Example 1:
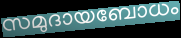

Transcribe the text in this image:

സമുദായബോധം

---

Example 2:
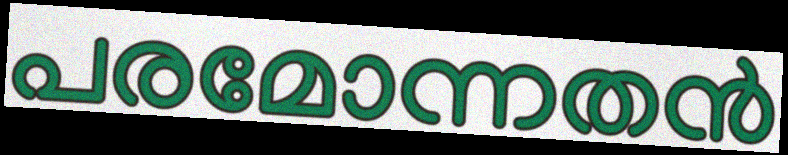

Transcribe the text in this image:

പരമോന്നതൻ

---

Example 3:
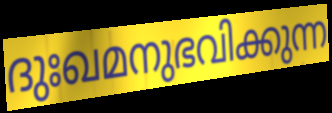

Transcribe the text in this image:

ദുഃഖമനുഭവിക്കുന്ന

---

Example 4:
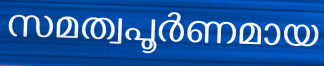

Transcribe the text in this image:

സമത്വപൂർണമായ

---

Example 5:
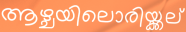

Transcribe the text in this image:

ആഴ്ചയിലൊരിയ്ക്കല്